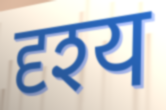
दृश्‍य